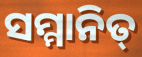
ସମ୍ମାନିତ୍